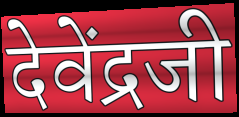
देवेंद्रजी